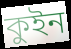
কুইন